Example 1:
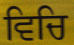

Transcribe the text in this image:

ਵਿਚਿ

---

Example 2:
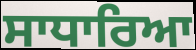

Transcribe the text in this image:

ਸਾਧਾਰਿਆ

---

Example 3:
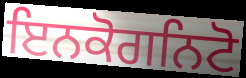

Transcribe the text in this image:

ਇਨਕੋਗਨਿਟੋ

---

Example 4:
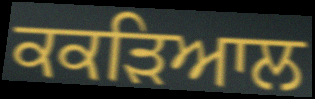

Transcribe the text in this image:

ਕਕੜਿਆਲ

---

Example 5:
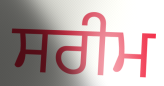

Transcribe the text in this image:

ਸਰੀਮ